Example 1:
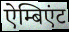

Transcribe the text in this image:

ऐम्बिएंट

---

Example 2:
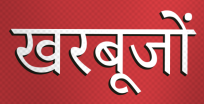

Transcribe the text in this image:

खरबूजों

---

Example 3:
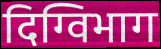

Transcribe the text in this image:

दिग्विभाग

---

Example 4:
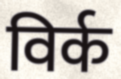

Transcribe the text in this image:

विर्क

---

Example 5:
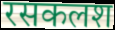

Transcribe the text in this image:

रसकलश